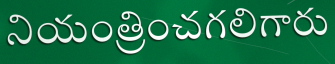
నియంత్రించగలిగారు